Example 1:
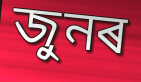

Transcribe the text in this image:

জুনৰ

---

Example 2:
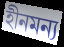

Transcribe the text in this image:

হীনমন্য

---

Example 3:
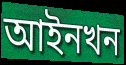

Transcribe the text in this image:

আইনখন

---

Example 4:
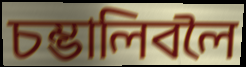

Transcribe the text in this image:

চম্ভালিবলৈ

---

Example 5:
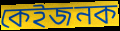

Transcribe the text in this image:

কেইজনক